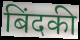
बिंदकी